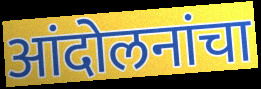
आंदोलनांचा